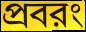
প্রবরং